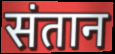
संतान